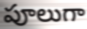
పూలుగా